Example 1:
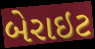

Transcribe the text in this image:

બેરાઇટ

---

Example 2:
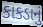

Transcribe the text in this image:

કાકડાનું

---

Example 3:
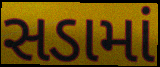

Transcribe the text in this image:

સડામાં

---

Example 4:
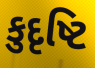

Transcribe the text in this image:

કુદૃષ્ટિ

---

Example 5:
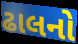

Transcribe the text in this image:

ઢાલનો